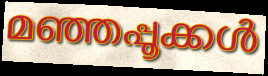
മഞ്ഞപ്പൂക്കൾ